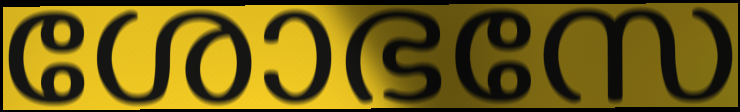
ശോഭസേ